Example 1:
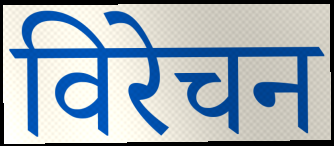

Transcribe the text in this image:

विरेचन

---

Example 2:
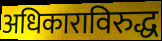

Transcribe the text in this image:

अधिकाराविरुद्ध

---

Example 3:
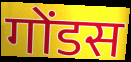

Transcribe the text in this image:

गोंडस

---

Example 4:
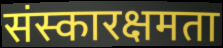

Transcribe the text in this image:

संस्कारक्षमता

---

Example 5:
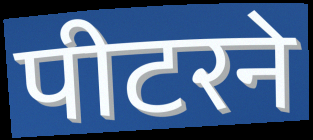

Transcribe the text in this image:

पीटरने